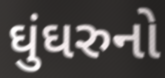
ઘુંઘરુનો